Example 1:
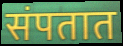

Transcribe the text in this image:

संपतात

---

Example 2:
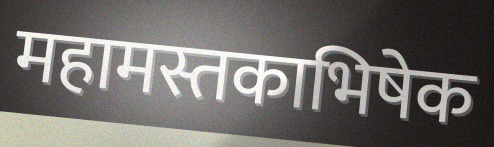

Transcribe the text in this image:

महामस्तकाभिषेक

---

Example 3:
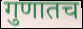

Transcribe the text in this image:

गुणातच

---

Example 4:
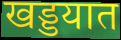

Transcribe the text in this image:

खड्डयात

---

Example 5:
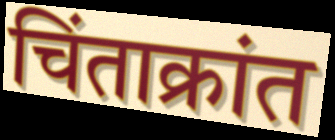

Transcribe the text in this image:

चिंताक्रांत